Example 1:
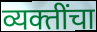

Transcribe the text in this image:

व्यक्‍तींचा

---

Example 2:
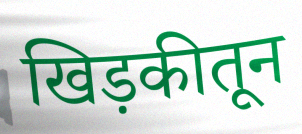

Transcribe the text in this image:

खिड़कीतून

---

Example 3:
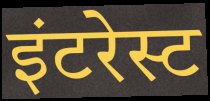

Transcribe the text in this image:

इंटरेस्ट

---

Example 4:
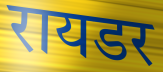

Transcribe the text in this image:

रायडर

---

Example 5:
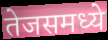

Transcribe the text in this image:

तेजसमध्ये